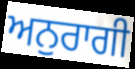
ਅਨੁਰਾਗੀ